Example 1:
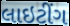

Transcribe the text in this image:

લાઇટીંગ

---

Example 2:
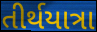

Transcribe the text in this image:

તીર્થયાત્રા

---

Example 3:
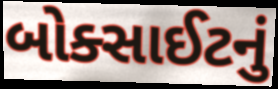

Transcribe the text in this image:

બોક્સાઈટનું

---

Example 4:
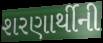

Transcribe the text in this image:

શરણાર્થીની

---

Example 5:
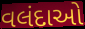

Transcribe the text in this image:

વલંદાઓ